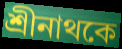
শ্রীনাথকে